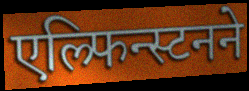
एल्फिन्स्टनने